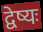
द्वेष्यः